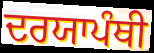
ਦਰਯਾਪੰਥੀ